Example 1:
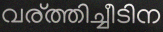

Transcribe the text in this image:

വര്ത്തിച്ചീടിന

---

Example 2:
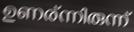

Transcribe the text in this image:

ഉണര്ന്നിരുന്ന്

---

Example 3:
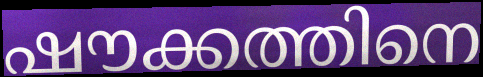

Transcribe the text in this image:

ഷൗക്കത്തിനെ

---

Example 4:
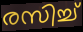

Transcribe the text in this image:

രസിച്ച്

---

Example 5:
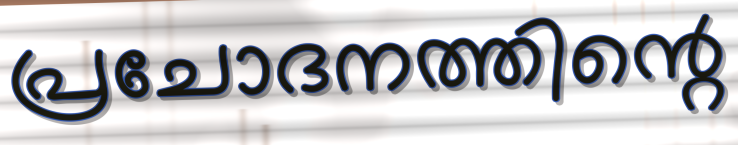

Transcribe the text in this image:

പ്രചോദനത്തിന്റെ